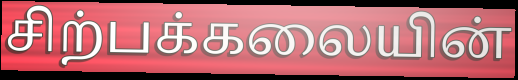
சிற்பக்கலையின்